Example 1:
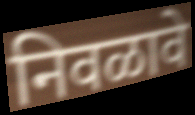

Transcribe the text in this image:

निवळावे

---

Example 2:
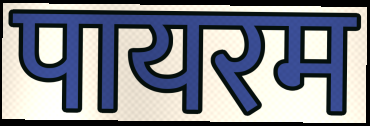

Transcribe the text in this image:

पायरम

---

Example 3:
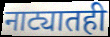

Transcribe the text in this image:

नाट्यातही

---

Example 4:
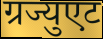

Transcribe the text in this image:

ग्रज्युएट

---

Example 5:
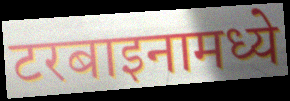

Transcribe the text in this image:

टरबाइनामध्ये